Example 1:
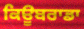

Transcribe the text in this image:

ਕਿਊਬਰਾਡਾ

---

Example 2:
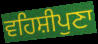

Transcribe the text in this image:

ਵਹਿਸ਼ੀਪੁਣਾ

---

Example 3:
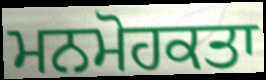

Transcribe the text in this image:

ਮਨਮੋਹਕਤਾ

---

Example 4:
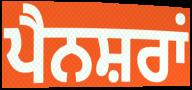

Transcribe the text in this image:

ਪੈਨਸ਼ਰਾਂ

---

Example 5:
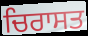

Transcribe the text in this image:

ਚਿਰਾਸਤ